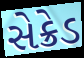
સેક્રેડ